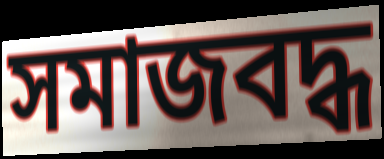
সমাজবদ্ধ